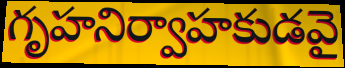
గృహనిర్వాహకుడవై